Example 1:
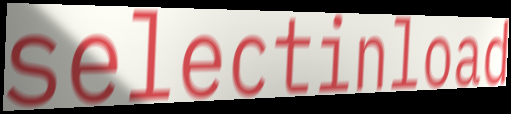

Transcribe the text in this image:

selectinload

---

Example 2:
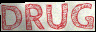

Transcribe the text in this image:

DRUG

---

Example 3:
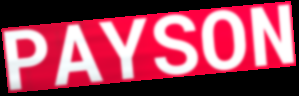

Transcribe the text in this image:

PAYSON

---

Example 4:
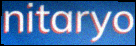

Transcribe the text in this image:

nitaryo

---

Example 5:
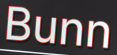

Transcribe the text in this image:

Bunn